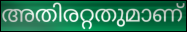
അതിരറ്റതുമാണ്